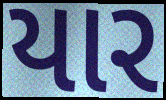
યાર